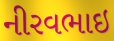
નીરવભાઇ